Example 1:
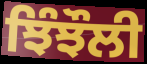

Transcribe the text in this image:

ਝਿੰਝੌਲੀ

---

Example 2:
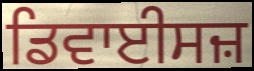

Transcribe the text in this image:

ਡਿਵਾਈਸਜ਼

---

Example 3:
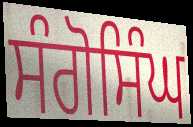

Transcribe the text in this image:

ਸੰਗੋਸਿੰਘ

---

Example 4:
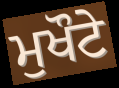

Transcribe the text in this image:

ਮੁਖੌਟੇ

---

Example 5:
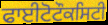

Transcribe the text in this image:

ਫਾਈਟੋਟੌਕਸਿਟੀ